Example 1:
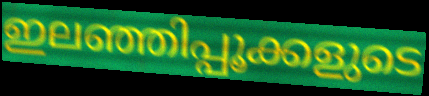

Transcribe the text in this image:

ഇലഞ്ഞിപ്പൂക്കളുടെ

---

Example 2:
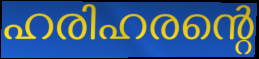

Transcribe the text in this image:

ഹരിഹരന്റെ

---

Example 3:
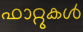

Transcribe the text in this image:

ഫാറ്റുകൾ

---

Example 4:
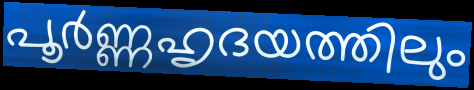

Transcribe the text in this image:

പൂർണ്ണഹൃദയത്തിലും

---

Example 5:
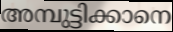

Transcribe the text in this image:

അമ്പുട്ടിക്കാനെ